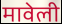
मावेली